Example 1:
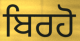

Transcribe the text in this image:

ਬਿਰਹੋ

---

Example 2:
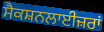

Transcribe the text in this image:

ਸੈਕਸ਼ਨਲਾਈਜ਼ਰਾਂ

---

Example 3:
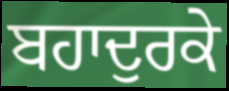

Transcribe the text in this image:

ਬਹਾਦੁਰਕੇ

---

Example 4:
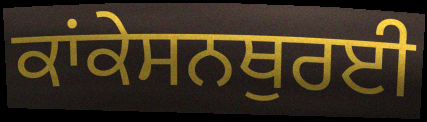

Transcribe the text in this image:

ਕਾਂਕੇਸਨਥੁਰਈ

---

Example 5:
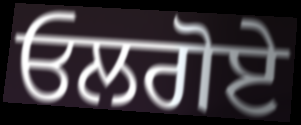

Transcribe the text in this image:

ਓਲਗੋਏ